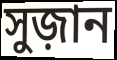
সুজ়ান